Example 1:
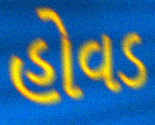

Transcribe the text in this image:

હોવડ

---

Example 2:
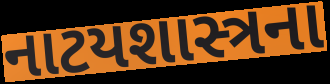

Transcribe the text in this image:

નાટયશાસ્ત્રના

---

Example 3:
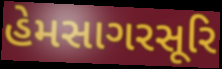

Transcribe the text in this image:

હેમસાગરસૂરિ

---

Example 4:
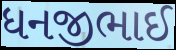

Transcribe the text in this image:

ધનજીભાઈ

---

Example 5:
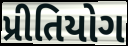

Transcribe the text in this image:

પ્રીતિયોગ